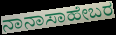
ನಾನಾಸಾಹೇಬರ